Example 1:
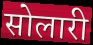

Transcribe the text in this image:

सोलारी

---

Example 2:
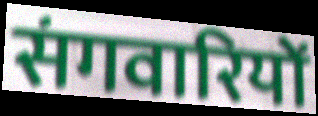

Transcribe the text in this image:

संगवारियों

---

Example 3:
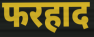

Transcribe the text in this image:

फरहाद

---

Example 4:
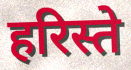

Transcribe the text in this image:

हरिस्ते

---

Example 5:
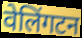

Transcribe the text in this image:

वेलिंगटन